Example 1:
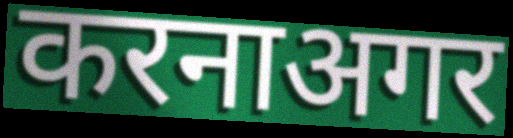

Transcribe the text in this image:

करनाअगर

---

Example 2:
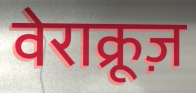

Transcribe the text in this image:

वेराक्रूज़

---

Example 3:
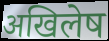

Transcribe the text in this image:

अखिलेष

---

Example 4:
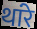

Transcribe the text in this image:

थांरे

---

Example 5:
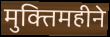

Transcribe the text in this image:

मुक्तिमहीने